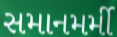
સમાનમર્મી